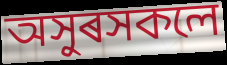
অসুৰসকলে